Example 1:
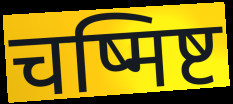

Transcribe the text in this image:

चष्मिष्ट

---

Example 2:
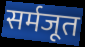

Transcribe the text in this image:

सर्मजूत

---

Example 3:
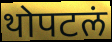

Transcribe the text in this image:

थोपटलं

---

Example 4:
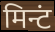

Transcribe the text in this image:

मिन्टं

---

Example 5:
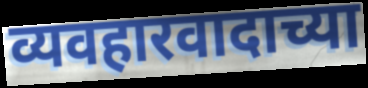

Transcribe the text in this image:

व्यवहारवादाच्या